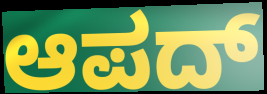
ಆಪದ್